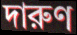
দারুণ